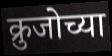
क्रुजोच्या